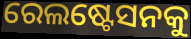
ରେଲଷ୍ଟେସନକୁ